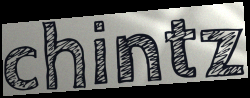
chintz